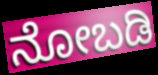
ನೋಬಡಿ